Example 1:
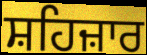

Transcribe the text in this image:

ਸ਼ਹਿਜ਼ਾਰ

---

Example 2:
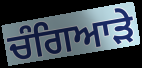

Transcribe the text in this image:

ਚੰਗਿਆੜੇ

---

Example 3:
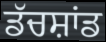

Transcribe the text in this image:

ਡੱਚਸ਼ਾਂਡ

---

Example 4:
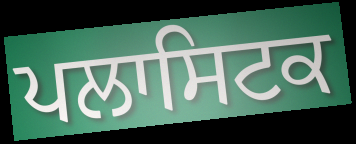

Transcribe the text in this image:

ਪਲਾਸਿਟਕ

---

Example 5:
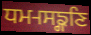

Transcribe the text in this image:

ਧਮ੍ਮਸਙ੍ਗਣਿ